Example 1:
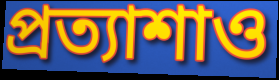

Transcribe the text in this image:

প্রত্যাশাও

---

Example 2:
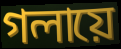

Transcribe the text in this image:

গলায়ে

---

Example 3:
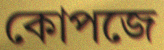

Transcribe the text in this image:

কোপজে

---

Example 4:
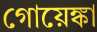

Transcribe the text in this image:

গোয়েঙ্কা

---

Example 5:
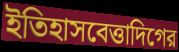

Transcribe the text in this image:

ইতিহাসবেত্তাদিগের